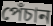
পেঁচান